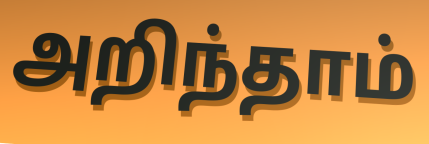
அறிந்தாம்